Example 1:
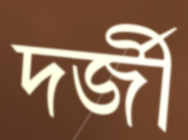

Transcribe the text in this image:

দৰ্জী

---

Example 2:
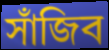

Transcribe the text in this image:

সাঁজিব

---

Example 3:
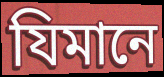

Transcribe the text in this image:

যিমানে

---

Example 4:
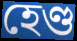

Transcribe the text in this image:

হেণ্ড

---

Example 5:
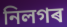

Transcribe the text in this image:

নিলগৰ